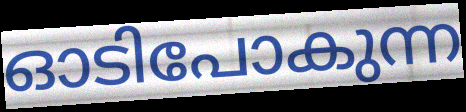
ഓടിപോകുന്ന